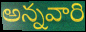
అన్నవారి